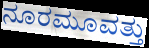
ನೂರಮೂವತ್ತು